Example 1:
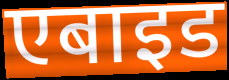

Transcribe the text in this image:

एबाइड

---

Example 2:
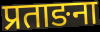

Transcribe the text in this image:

प्रताङना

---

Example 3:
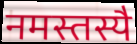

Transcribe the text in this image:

नमस्तस्यै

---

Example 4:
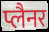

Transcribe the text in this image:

प्लैनर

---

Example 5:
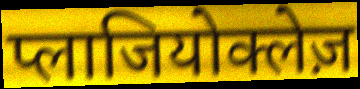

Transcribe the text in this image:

प्लाजियोक्लेज़